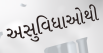
અસુવિધાઓથી